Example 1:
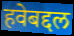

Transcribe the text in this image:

हवेबद्दल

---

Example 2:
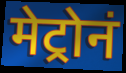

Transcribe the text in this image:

मेट्रोनं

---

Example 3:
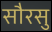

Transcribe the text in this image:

सौरसु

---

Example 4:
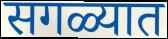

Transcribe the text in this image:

सगळ्यात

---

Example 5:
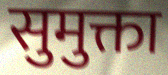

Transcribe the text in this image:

सुमुक्ता